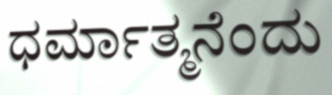
ಧರ್ಮಾತ್ಮನೆಂದು